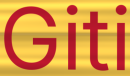
Giti